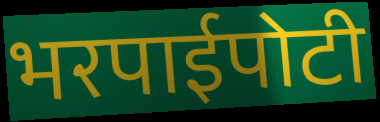
भरपाईपोटी